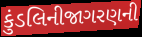
કુંડલિનીજાગરણની